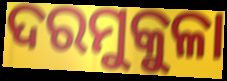
ଦରମୁକୁଳା